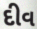
દીવ